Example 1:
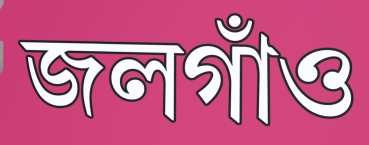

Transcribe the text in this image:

জলগাঁও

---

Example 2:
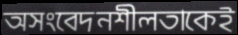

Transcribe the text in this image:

অসংবেদনশীলতাকেই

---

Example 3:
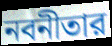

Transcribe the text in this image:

নবনীতার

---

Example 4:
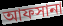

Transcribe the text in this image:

আফসানা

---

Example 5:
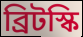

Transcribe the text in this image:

ব্রিটস্কি